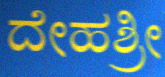
ದೇಹಶ್ರೀ